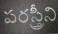
పరస్త్రీని